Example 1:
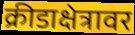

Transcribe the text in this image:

क्रीडाक्षेत्रावर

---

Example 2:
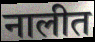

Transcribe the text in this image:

नालीत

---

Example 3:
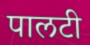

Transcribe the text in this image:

पालटी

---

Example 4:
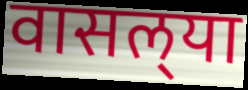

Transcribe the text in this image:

वासल्या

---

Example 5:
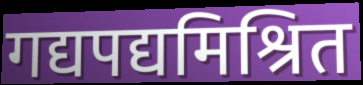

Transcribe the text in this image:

गद्यपद्यमिश्रित